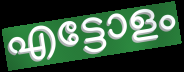
എട്ടോളം